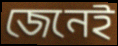
জেনেই